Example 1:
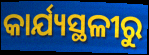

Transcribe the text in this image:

କାର୍ଯ୍ୟସ୍ଥଳୀରୁ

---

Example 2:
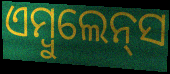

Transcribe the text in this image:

ଏମ୍ବୁଲେନ୍‌ସ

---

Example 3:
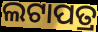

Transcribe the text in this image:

ଲଟାପତ୍ର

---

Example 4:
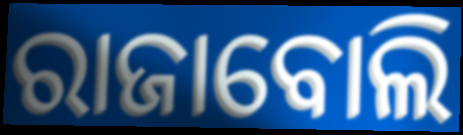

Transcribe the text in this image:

ରାଜାବୋଲି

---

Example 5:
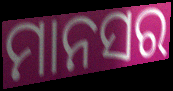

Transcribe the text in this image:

ମାନସର